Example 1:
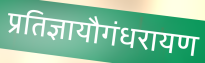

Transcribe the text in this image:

प्रतिज्ञायौगंधरायण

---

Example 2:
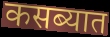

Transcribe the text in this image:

कसब्यात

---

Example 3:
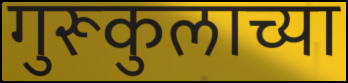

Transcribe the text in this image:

गुरूकुलाच्या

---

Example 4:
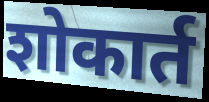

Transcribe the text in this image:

शोकार्त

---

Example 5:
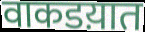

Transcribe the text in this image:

वाकडय़ात